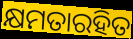
କ୍ଷମତାରହିତ